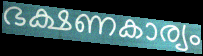
ഭക്ഷണകാര്യം